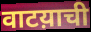
वाटय़ाची